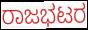
ರಾಜಭಟರ